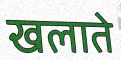
खलाते